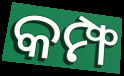
କମ୍ଫ